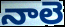
నాలె